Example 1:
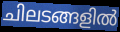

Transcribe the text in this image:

ചിലടങ്ങളിൽ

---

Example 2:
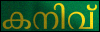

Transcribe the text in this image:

കനിവ്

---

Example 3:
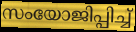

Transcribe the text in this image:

സംയോജിപ്പിച്ച്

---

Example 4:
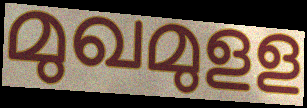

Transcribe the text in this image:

മുഖമുളള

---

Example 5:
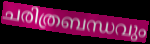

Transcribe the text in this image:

ചരിത്രബന്ധവും